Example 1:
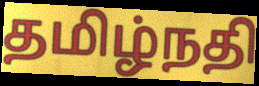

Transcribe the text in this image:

தமிழ்நதி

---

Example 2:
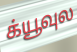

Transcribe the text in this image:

க்யூவுல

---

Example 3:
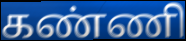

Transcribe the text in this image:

கண்ணி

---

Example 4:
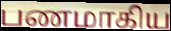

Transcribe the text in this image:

பணமாகிய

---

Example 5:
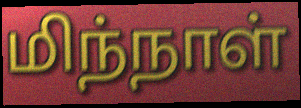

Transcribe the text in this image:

மிந்நாள்